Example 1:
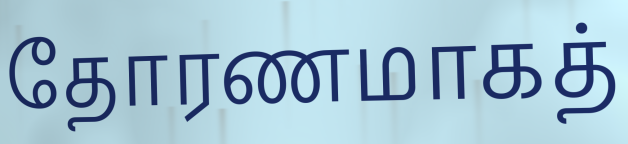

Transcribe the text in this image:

தோரணமாகத்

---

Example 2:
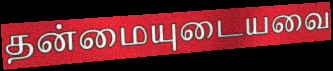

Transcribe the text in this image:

தன்மையுடையவை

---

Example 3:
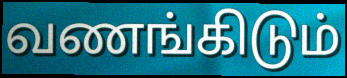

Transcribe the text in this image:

வணங்கிடும்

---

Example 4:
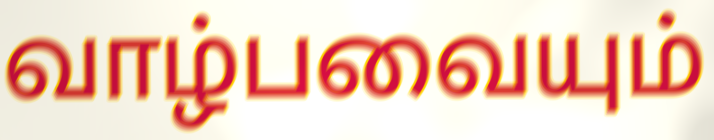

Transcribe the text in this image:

வாழ்பவையும்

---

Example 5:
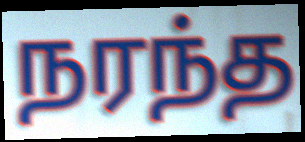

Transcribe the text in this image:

நரந்த